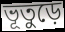
ভূতুড়ে